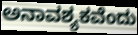
ಅನಾವಶ್ಯಕವೆಂದು